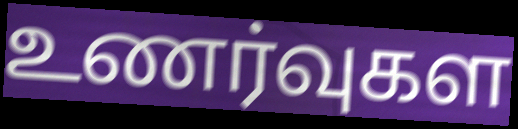
உணர்வுகள